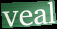
veal